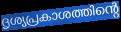
ദൃശ്യപ്രകാശത്തിന്റെ